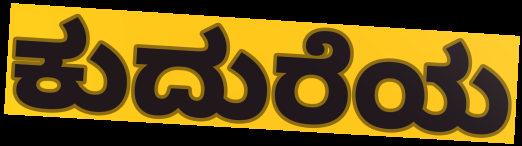
ಕುದುರೆಯ